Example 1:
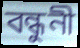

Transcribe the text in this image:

বন্ধুনী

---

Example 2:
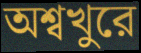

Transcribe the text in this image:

অশ্বখুরে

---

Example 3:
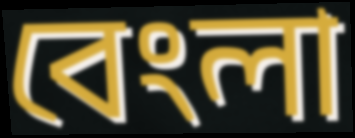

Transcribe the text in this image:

বেংলা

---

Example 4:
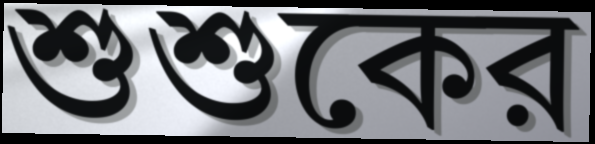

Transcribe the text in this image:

শুশুকের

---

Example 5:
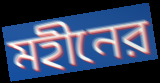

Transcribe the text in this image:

মহীনের